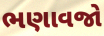
ભણાવજો